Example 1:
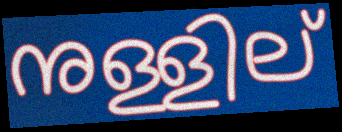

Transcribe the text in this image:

നുള്ളില്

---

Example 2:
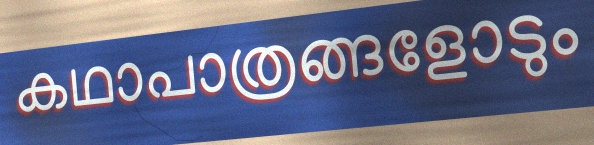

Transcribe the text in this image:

കഥാപാത്രങ്ങളോടും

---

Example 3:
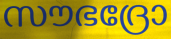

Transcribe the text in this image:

സൗഭദ്രോ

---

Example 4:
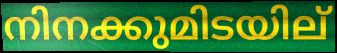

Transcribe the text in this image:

നിനക്കുമിടയില്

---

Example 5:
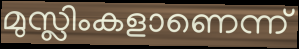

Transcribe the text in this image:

മുസ്ലിംകളാണെന്ന്